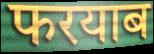
फरयाब